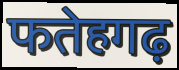
फतेहगढ़